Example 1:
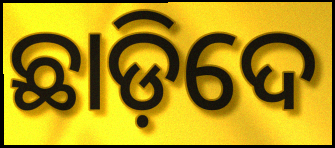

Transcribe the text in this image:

ଛାଡ଼ିଦେ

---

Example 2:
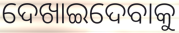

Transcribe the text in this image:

ଦେଖାଇଦେବାକୁ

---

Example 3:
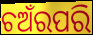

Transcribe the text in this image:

ଚଅଁରପରି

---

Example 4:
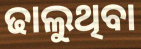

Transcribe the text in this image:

ଢାଲୁଥିବା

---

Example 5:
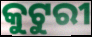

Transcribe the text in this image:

କୁଟୁରୀ